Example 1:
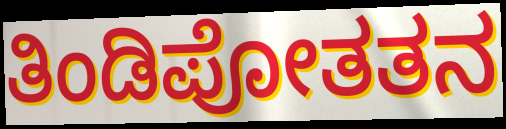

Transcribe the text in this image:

ತಿಂಡಿಪೋತತನ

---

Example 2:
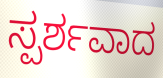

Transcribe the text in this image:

ಸ್ಪರ್ಶವಾದ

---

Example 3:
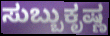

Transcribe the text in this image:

ಸುಬ್ಬುಕೃಷ್ಣ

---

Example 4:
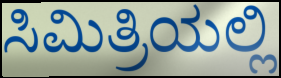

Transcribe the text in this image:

ಸಿಮಿತ್ರಿಯಲ್ಲಿ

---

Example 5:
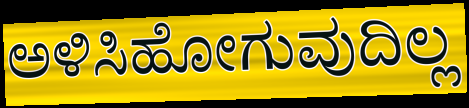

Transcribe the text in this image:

ಅಳಿಸಿಹೋಗುವುದಿಲ್ಲ